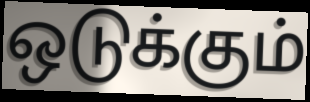
ஒடுக்கும்